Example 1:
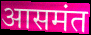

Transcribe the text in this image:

आसमंत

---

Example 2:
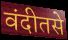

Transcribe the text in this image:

वंदीतसे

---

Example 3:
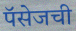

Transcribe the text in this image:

पॅसेजची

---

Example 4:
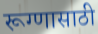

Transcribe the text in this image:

रूग्णासाठी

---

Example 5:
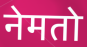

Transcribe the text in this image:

नेमतो